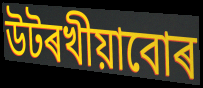
উটৰখীয়াবোৰ